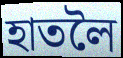
হাতলৈ